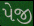
પેજી